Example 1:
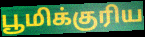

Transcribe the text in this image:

பூமிக்குரிய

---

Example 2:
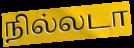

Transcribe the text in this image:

நில்லடா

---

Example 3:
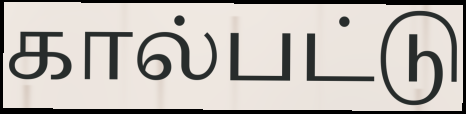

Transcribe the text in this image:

கால்பட்டு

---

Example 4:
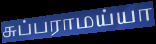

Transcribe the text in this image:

சுப்பராமய்யா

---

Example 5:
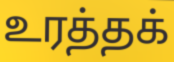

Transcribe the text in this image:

உரத்தக்